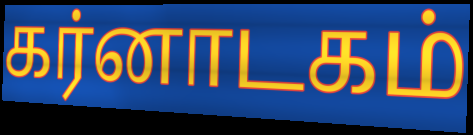
கர்னாடகம்